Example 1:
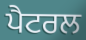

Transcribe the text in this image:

ਪੈਟਰਲ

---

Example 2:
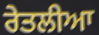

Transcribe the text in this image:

ਰੇਤਲੀਆ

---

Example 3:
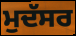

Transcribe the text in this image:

ਮੁਦੱਸਰ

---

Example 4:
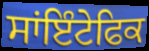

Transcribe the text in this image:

ਸਾਂਇੰਟੇਫਿਕ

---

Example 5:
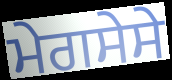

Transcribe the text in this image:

ਮੇਗਸੇਸੇ